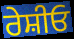
ਰੇਸ਼ੀਓ